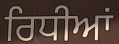
ਰਿਧੀਆਂ